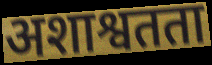
अशाश्वतता